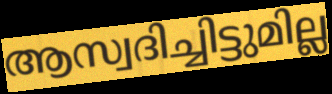
ആസ്വദിച്ചിട്ടുമില്ല